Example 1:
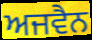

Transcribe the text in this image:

ਅਜਵੈਨ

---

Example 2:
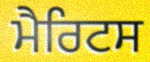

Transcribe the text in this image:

ਮੈਰਿਟਸ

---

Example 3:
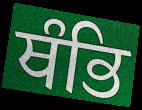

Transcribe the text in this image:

ਥੰਭਿ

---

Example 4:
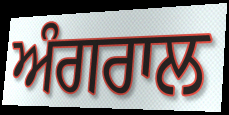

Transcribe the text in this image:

ਅੰਗਰਾਲ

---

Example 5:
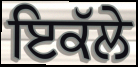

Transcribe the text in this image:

ਇਕੱਲੇ